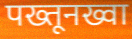
पख्तूनख्वा